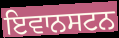
ਇਵਾਨਸਟਨ